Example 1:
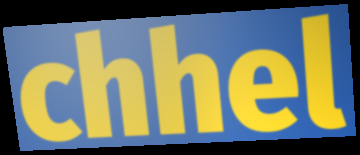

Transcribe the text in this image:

chhel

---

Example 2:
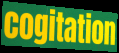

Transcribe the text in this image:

cogitation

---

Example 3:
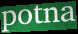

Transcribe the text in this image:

potna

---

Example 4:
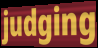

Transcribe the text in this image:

judging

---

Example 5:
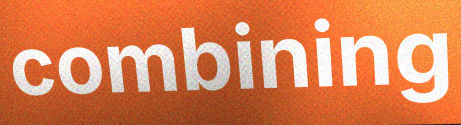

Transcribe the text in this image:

combining